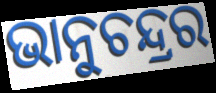
ଭାନୁଚନ୍ଦ୍ରର